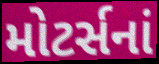
મોટર્સનાં